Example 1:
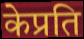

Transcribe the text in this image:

केप्रति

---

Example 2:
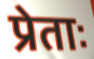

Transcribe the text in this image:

प्रेताः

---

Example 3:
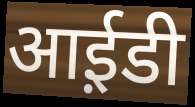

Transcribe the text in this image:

आई़डी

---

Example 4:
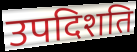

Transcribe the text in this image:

उपदिशति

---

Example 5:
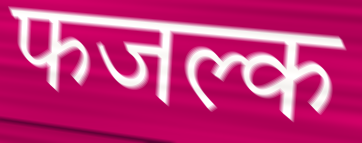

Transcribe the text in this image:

फजल्क